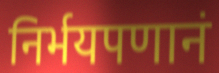
निर्भयपणानं